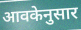
आवकेनुसार